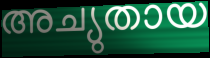
അച്യുതായ